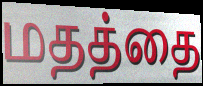
மதத்தை